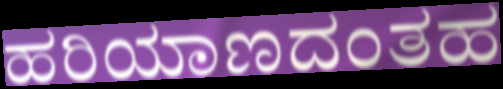
ಹರಿಯಾಣದಂತಹ